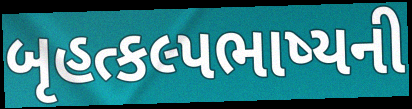
બૃહત્કલ્પભાષ્યની